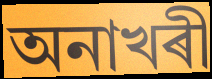
অনাখৰী